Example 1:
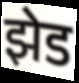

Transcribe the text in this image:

झेड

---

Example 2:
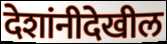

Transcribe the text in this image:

देशांनीदेखील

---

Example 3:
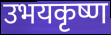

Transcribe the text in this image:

उभयकृष्ण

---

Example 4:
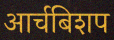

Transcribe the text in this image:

आर्चबिशप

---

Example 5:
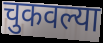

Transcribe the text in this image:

चुकवल्या